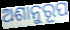
ଅଶାନୁରୂପ